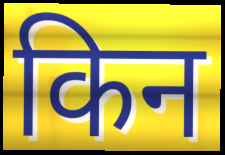
किन